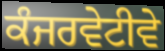
ਕੰਜਰਵੇਟੀਵੇ